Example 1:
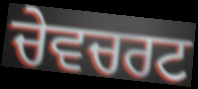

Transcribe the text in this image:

ਚੇਵਚਰਟ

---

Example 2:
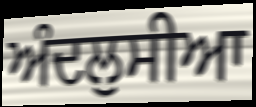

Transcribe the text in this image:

ਅੰਦਲੁਸੀਆ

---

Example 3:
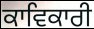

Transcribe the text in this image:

ਕਾਵਿਕਾਰੀ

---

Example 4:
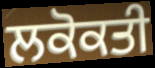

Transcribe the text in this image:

ਲਕੋਕਤੀ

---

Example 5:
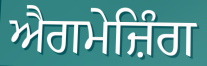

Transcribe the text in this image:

ਐਗਮੇਜ਼ਿੰਗ